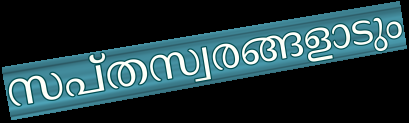
സപ്തസ്വരങ്ങളാടും